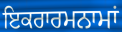
ਇਕਰਾਰਮਨਾਮਾਂ